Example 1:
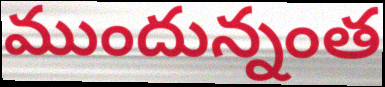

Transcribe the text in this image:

ముందున్నంత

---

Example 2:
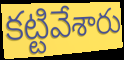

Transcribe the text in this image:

కట్టివేశారు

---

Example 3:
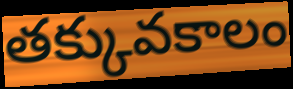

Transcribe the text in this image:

తక్కువకాలం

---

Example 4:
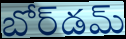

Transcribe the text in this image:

బోర్‌డమ్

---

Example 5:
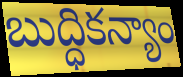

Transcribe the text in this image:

బుద్ధికన్యాం